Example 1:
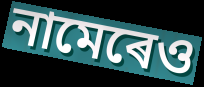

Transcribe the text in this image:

নামেৰেও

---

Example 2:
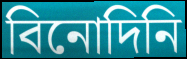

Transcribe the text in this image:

বিনোদিনি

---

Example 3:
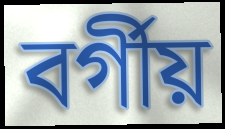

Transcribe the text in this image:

বৰ্গীয়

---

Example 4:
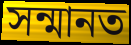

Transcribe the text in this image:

সন্মানত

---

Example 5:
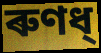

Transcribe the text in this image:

ৰুণধ্